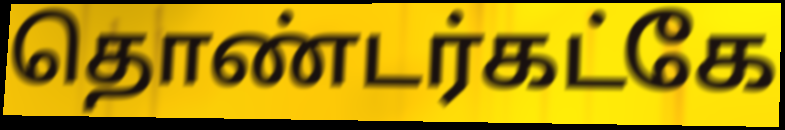
தொண்டர்கட்கே